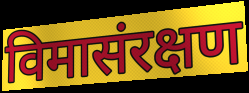
विमासंरक्षण